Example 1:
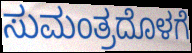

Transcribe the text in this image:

ಸುಮಂತ್ರದೊಳಗೆ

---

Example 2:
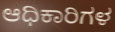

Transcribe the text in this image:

ಆಧಿಕಾರಿಗಳ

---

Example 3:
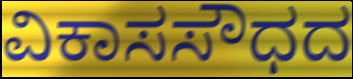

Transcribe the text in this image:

ವಿಕಾಸಸೌಧದ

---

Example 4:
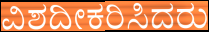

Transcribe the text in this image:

ವಿಶದೀಕರಿಸಿದರು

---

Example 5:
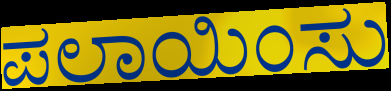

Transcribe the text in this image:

ಪಲಾಯಿಂಸು